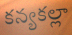
కన్యకల్లా